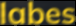
Iabes